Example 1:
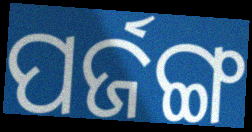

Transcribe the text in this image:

ପର୍ଜଙ୍ଗ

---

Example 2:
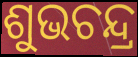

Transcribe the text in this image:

ଶୁଭଚନ୍ଦ୍ର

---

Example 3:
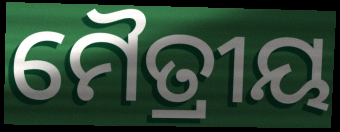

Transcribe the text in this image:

ମୈତ୍ରୀୟ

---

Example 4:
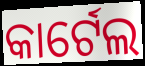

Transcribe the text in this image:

କାର୍ଟେଲ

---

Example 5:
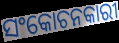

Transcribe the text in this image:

ସଂକୋଚନକାରୀ